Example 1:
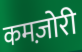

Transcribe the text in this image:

कमज़ोरी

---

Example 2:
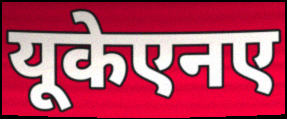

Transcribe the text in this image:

यूकेएनए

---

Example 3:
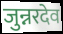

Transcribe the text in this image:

जुन्नरदेव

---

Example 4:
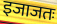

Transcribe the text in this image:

इजाजतः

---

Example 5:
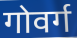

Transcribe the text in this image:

गोवर्ग